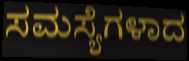
ಸಮಸ್ಯೆಗಳಾದ